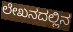
ಲೇಖನದಲ್ಲಿನ